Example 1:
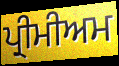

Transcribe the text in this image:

ਪ੍ਰੀਮੀਅਮ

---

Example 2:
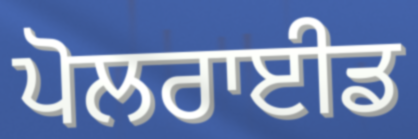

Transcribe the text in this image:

ਪੋਲਰਾਈਡ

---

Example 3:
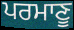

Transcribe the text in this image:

ਪਰਮਾਣੂ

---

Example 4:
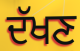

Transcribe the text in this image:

ਦੱਖਣ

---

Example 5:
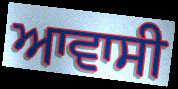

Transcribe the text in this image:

ਆਵਾਸੀ